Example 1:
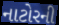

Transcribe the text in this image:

નાટોરની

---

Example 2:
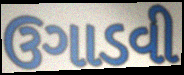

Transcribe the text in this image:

ઉગાડવી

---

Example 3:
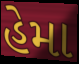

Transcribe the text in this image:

હેમા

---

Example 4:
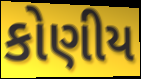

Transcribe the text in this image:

કોણીય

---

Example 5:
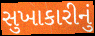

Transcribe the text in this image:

સુખાકારીનું